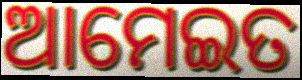
ଆମେଇତ